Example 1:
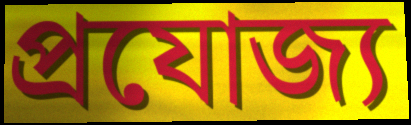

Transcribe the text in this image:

প্ৰযোজ্য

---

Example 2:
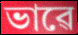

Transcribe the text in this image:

ভাৱে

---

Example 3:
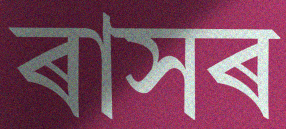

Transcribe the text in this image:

ৰাসৰ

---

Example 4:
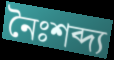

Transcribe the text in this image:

নৈঃশব্দ্য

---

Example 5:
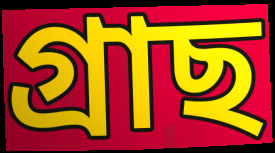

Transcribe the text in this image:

গ্ৰাছ